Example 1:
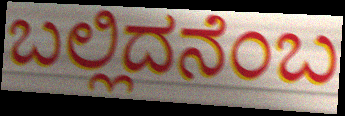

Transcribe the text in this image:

ಬಲ್ಲಿದನೆಂಬ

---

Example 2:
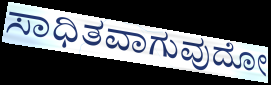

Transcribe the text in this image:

ಸಾಧಿತವಾಗುವುದೋ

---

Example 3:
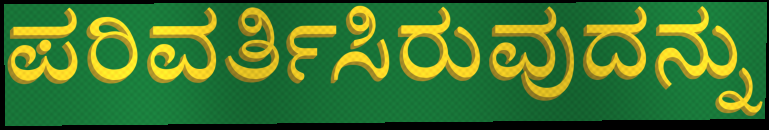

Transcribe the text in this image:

ಪರಿವರ್ತಿಸಿರುವುದನ್ನು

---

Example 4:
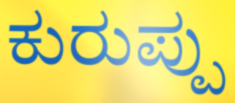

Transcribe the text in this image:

ಕುರುಪ್ಪು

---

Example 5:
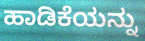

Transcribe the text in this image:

ಹಾಡಿಕೆಯನ್ನು